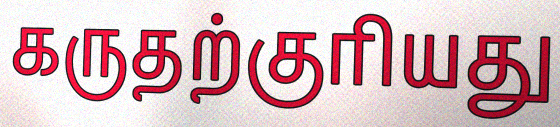
கருதற்குரியது